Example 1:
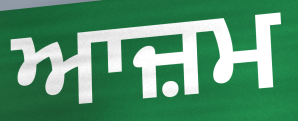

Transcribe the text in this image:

ਆਜ਼ਮ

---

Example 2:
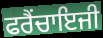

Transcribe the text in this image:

ਫਰੈਂਚਾਇਜੀ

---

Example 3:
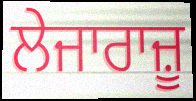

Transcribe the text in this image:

ਲੇਜਾਰਾਜ਼ੂ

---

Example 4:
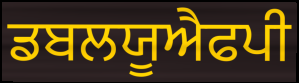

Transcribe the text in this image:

ਡਬਲਯੂਐਫਪੀ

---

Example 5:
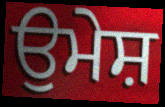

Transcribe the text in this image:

ਉਮੇਸ਼